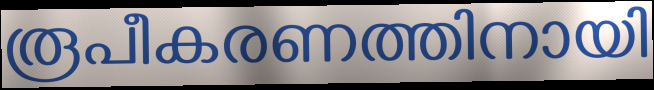
രൂപീകരണത്തിനായി